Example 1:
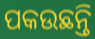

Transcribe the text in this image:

ପକଉଛନ୍ତି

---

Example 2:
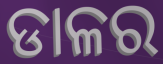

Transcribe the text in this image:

ଡାଳର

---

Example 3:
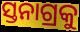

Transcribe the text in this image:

ସ୍ତନାଗ୍ରକୁ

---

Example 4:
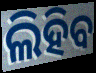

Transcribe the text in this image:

ଲିହିବ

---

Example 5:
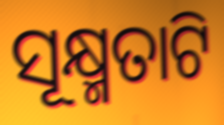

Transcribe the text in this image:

ସୂକ୍ଷ୍ମତାଟି